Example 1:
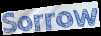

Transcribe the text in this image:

Sorrow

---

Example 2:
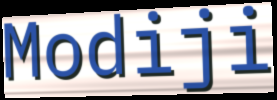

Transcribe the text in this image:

Modiji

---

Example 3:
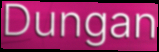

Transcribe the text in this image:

Dungan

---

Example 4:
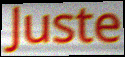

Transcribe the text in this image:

Juste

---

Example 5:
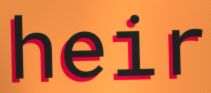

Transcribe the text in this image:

heir